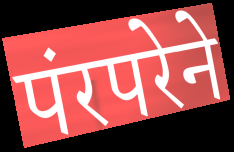
पंरपरेने